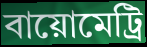
বায়োমেট্রি